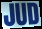
JUD